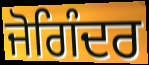
ਜੋਗਿੰਦਰ